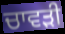
ਚਾਵੜੀ